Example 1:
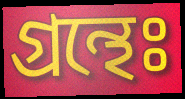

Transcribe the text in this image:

গ্রন্থেঃ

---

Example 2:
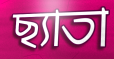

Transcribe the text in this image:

ছ্যাতা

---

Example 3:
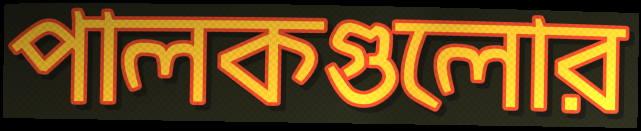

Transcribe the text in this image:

পালকগুলোর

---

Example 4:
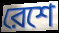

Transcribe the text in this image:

রেশে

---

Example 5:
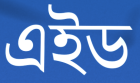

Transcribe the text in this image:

এইড